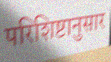
परिशिष्टानुसार